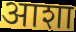
आशा